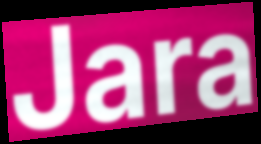
Jara